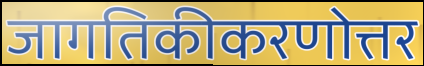
जागतिकीकरणोत्तर